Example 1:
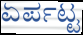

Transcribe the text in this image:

ಏರ್ಪಟ್ಟ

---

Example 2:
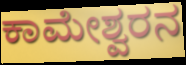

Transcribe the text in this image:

ಕಾಮೇಶ್ವರನ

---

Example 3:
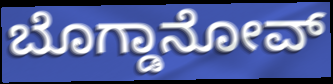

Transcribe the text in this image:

ಬೊಗ್ಡಾನೋವ್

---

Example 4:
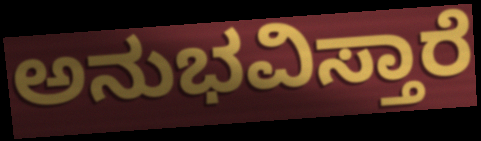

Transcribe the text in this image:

ಅನುಭವಿಸ್ತಾರೆ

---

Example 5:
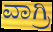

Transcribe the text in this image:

ವಾಗ್ರಿ